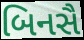
બિનસૈ